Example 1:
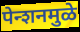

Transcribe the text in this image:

पेन्शनमुळे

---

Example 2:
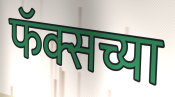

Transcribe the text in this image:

फॅक्सच्या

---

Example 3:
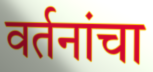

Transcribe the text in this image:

वर्तनांचा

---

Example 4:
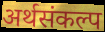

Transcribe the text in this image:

अर्थसंकल्प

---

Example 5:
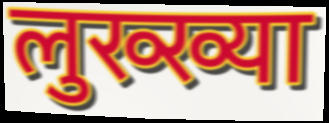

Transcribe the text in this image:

लुख्ख्या